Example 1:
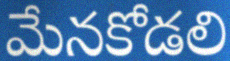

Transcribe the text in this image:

మేనకోడలి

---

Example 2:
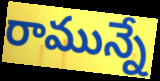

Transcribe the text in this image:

రామున్నే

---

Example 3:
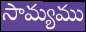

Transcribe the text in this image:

సామ్యము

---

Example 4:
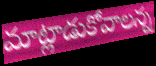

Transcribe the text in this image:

మాట్లాడుకోవాలన్న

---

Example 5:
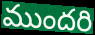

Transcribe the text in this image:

ముందరి